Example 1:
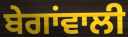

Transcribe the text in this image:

ਬੇਗਾਂਵਾਲੀ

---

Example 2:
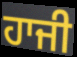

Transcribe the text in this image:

ਹਾਜੀ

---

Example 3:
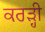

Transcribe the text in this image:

ਕਰੜ੍ਹੀ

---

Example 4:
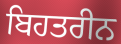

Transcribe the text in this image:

ਬਿਹਤਰੀਨ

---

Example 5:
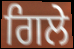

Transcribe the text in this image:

ਗਿਲੇ